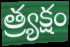
త్ర్యక్షం